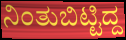
ನಿಂತುಬಿಟ್ಟಿದ್ದ